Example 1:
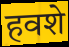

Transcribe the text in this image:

हवशे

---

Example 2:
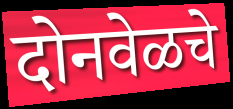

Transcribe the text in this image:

दोनवेळचे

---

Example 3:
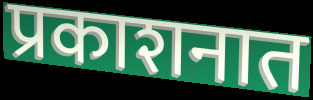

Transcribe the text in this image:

प्रकाशनात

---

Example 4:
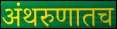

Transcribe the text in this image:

अंथरुणातच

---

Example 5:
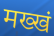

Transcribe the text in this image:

मख्खं